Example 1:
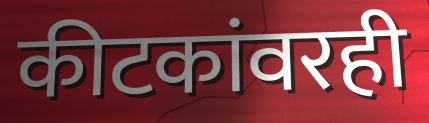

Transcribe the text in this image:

कीटकांवरही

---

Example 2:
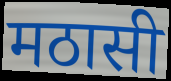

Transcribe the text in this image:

मठासी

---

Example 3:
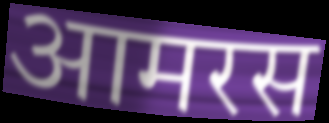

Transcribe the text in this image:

आमरस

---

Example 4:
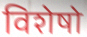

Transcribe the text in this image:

विशेषो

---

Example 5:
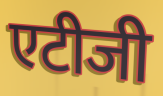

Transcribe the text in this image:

एटीजी